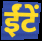
ईंटें